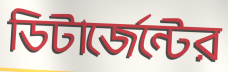
ডিটার্জেন্টের